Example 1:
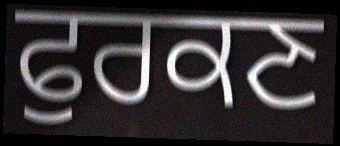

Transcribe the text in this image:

ਫੁਰਕਣ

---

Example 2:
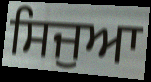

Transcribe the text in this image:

ਸਿਜੁਆ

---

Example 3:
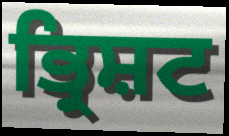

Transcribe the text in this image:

ਭ੍ਰਿਸ਼ਟ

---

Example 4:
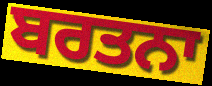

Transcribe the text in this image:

ਬਰਤਨਾ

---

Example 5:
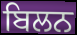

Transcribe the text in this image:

ਬਿਲਨ